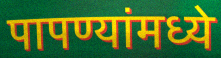
पापण्यांमध्ये